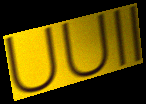
UUII